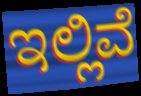
ಇಲ್ಲಿವೆ